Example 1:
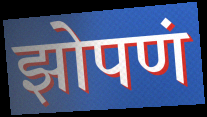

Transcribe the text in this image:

झोपणं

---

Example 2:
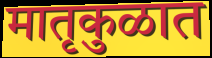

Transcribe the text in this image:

मातृकुळात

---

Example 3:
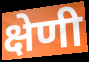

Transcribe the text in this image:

क्षेणी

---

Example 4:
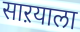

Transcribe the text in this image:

साऱयाला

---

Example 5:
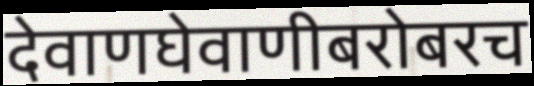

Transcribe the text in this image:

देवाणघेवाणीबरोबरच